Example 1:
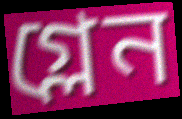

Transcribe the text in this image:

গ্লেন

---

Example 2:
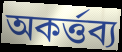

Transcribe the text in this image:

অকর্ত্তব্য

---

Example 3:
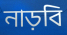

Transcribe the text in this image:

নাড়বি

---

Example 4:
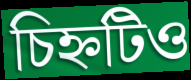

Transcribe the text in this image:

চিহ্নটিও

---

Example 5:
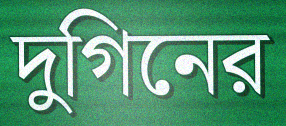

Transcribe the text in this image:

দুগিনের